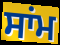
ਸਾਂਮ